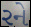
રને